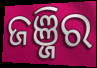
ଜଞ୍ଜିର